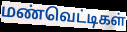
மண்வெட்டிகள்